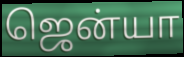
ஜென்யா